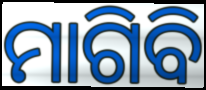
ମାଗିବି